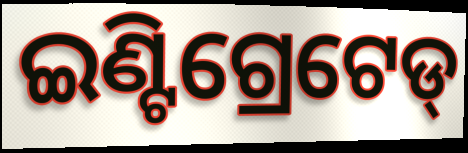
ଇଣ୍ଟିଗ୍ରେଟେଡ୍